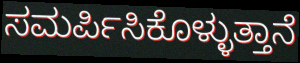
ಸಮರ್ಪಿಸಿಕೊಳ್ಳುತ್ತಾನೆ